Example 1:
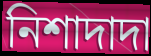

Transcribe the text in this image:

নিশাদাদা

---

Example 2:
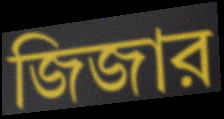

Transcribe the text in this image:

জিজার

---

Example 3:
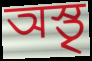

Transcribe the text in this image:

অস্তৃ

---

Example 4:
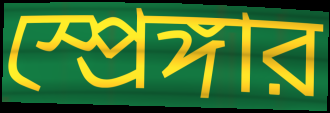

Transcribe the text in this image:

স্প্রেঙ্গার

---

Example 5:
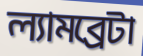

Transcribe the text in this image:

ল্যামব্রেটা